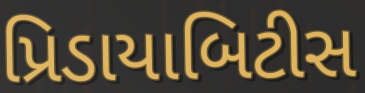
પ્રિડાયાબિટીસ